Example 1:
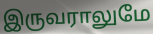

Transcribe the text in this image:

இருவராலுமே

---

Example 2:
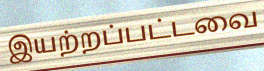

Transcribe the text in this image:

இயற்றப்பட்டவை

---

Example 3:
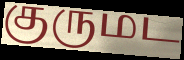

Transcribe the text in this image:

குருமட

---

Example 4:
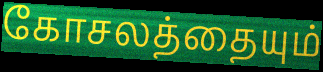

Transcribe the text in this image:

கோசலத்தையும்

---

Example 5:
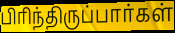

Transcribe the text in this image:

பிரிந்திருப்பார்கள்